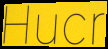
Hucr